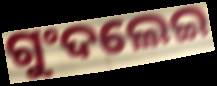
ଗୁଂଦଲେଇ